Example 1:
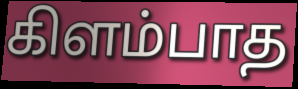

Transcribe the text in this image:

கிளம்பாத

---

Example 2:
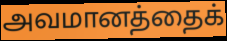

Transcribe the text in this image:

அவமானத்தைக்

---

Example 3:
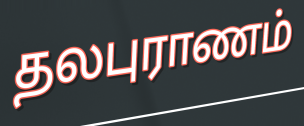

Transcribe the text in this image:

தலபுராணம்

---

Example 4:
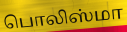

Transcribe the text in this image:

பொலிஸ்மா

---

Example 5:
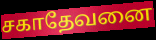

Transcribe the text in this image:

சகாதேவனை